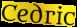
Cedric